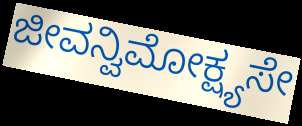
ಜೀವನ್ವಿಮೋಕ್ಷ್ಯಸೇ